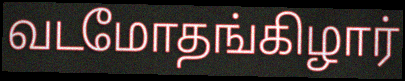
வடமோதங்கிழார்